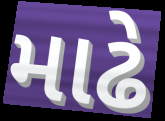
માઢે